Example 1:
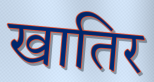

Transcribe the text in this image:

खातिर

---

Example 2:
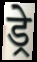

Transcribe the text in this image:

ड्रे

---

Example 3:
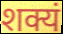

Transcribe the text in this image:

शक्यं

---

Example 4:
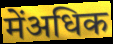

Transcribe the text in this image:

मेंअधिक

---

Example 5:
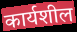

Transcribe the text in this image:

कार्यशील